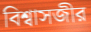
বিশ্বাসজীর